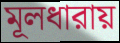
মূলধারায়